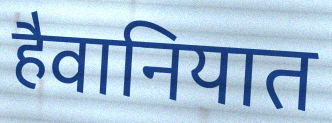
हैवानियात